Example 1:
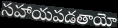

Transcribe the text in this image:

సహాయపడతాయో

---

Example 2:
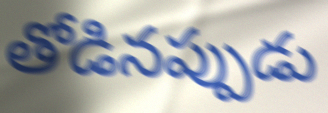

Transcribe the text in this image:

తోడినప్పుడు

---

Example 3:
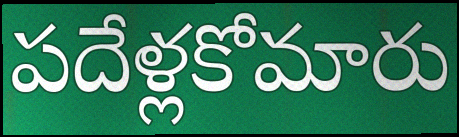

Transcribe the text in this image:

పదేళ్లకోమారు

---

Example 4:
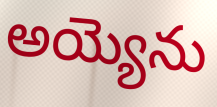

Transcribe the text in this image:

అయ్యెను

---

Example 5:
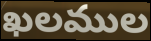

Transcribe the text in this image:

ఖలముల